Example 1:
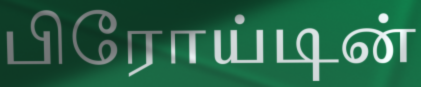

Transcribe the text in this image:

பிரோய்டின்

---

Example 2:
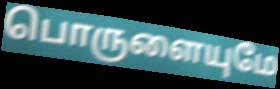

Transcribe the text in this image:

பொருளையுமே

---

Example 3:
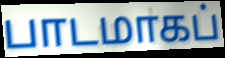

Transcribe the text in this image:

பாடமாகப்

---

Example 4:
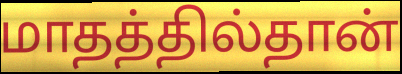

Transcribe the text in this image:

மாதத்தில்தான்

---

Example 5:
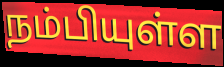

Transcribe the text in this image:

நம்பியுள்ள